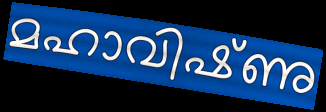
മഹാവിഷ്‌ണു